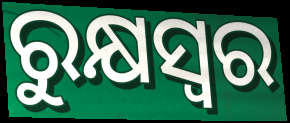
ରୁକ୍ଷସ୍ୱର